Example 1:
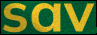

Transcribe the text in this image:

sav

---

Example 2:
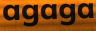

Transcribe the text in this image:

agaga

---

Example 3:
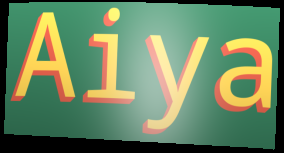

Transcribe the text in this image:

Aiya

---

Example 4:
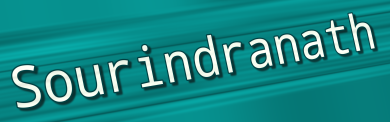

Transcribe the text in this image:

Sourindranath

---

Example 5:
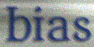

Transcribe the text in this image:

bias